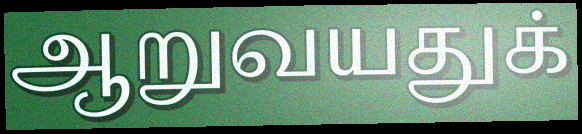
ஆறுவயதுக்